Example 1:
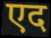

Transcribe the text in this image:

एद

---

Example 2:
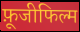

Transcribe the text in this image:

फ़ूजीफिल्म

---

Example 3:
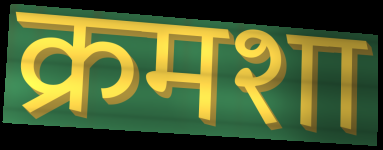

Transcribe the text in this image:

क्रमशा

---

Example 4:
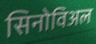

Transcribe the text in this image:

सिनोविअल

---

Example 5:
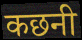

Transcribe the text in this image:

कछनी